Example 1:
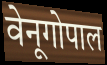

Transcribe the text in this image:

वेनूगोपाल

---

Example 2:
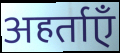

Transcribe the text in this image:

अहर्ताएँ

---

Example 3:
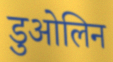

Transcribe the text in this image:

डुओलिन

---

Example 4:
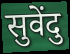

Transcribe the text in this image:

सुवेंदु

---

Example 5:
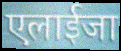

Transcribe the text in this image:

एलाईजा